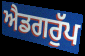
ਐਡਗਰੁੱਪ